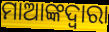
ମାଆଙ୍କଦ୍ଵାରା